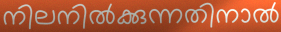
നിലനിൽക്കുന്നതിനാൽ